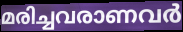
മരിച്ചവരാണവർ